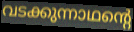
വടക്കുന്നാഥന്റെ